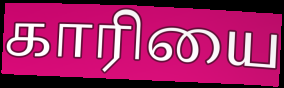
காரியை